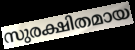
സുരക്ഷിതമായ